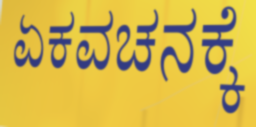
ಏಕವಚನಕ್ಕೆ